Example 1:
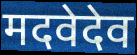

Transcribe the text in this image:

मदवेदेव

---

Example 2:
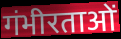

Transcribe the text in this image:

गंभीरताओं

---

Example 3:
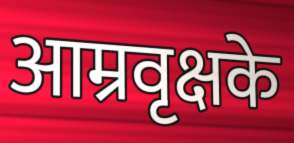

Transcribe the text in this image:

आम्रवृक्षके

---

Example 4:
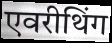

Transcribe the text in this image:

एवरीथिंग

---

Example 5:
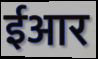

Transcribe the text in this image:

ईआर